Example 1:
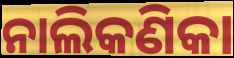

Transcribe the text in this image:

ନାଲିକଣିକା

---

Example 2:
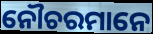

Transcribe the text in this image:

ନୌଚରମାନେ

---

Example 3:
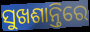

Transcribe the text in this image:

ସୁଖଶାନ୍ତିରେ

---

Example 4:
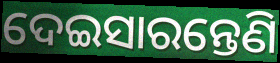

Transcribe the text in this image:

ଦେଇସାରନ୍ତେଣି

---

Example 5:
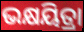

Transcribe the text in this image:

ଭକ୍ଷୟିତ୍ରା